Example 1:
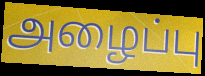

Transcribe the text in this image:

அழைப்பு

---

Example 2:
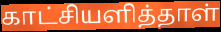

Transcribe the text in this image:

காட்சியளித்தாள்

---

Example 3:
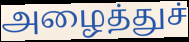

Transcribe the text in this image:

அழைத்துச்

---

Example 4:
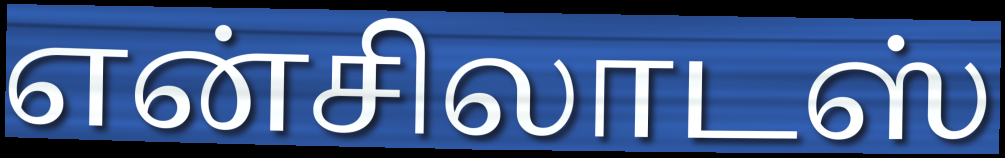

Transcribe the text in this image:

என்சிலாடஸ்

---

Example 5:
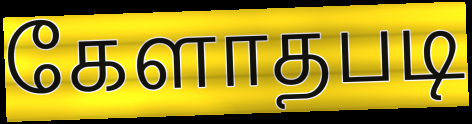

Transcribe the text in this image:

கேளாதபடி